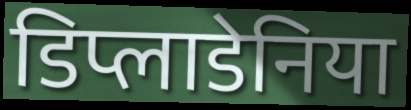
डिप्लाडेनिया